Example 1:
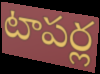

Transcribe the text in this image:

టాపర్ల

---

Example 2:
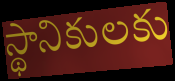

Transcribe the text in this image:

స్థానికులకు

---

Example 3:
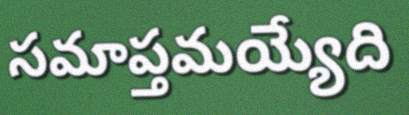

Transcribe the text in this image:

సమాప్తమయ్యేది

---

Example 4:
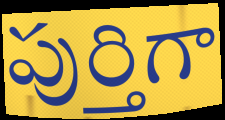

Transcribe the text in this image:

పుర్తిగా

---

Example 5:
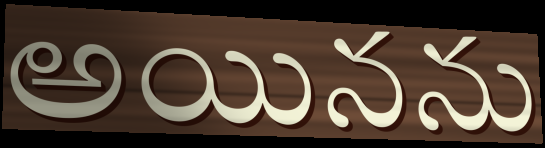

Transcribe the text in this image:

అయినను